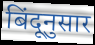
बिंदूनुसार